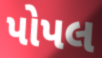
પોપલ